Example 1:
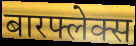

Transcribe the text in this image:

बारफ्लेक्स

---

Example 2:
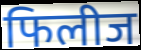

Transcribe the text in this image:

फिलीज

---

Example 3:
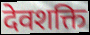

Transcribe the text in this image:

देवशक्ति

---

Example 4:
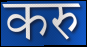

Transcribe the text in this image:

करु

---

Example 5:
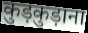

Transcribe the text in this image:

कुड़कुड़ाना